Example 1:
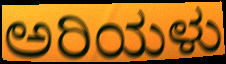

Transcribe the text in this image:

ಅರಿಯಳು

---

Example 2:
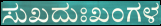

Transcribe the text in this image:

ಸುಖದುಃಖಂಗಳ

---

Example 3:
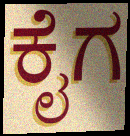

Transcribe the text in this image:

ಕೈಗ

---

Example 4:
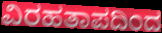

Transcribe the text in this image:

ವಿರಹತಾಪದಿಂದ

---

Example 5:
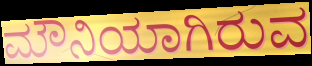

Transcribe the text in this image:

ಮೌನಿಯಾಗಿರುವ